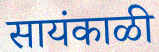
सायंकाळी